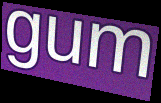
gum